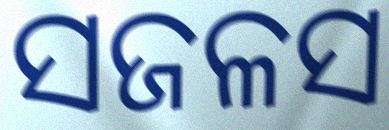
ସଜଳସ